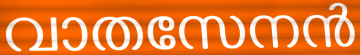
വാതസേനൻ